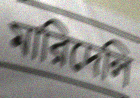
মারিদেলি